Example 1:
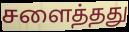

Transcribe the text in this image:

சளைத்தது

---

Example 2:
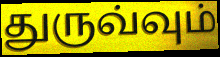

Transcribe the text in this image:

துருவ்வும்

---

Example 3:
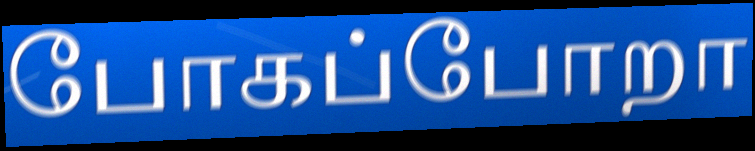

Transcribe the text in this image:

போகப்போறா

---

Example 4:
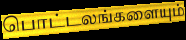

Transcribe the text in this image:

பொட்டலங்களையும்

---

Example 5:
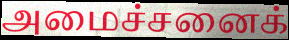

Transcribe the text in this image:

அமைச்சனைக்